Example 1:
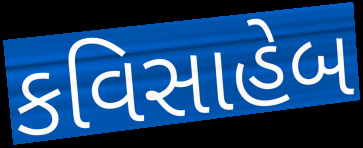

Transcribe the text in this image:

કવિસાહેબ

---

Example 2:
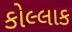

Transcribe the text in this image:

કોલ્લાક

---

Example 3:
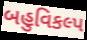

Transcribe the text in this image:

બહુવિકલ્પ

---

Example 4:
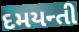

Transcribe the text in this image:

દમયન્તી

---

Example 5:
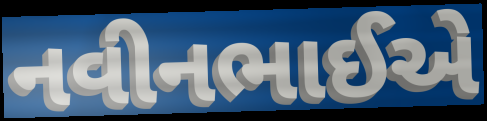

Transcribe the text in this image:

નવીનભાઈએ